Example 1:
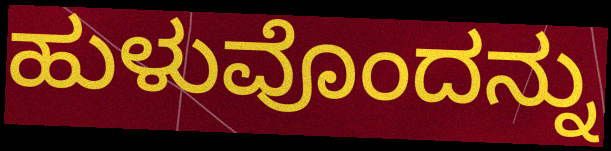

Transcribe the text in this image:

ಹುಳುವೊಂದನ್ನು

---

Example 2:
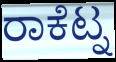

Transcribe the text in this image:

ರಾಕೆಟ್ನ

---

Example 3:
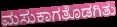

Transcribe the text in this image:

ಮಸುಕಾಗತೊಡಗಿತು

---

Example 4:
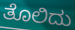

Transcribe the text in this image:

ತೊಲಿದು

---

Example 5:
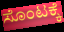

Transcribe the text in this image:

ಸೊಂಟಕ್ಕೆ